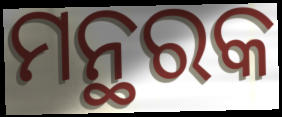
ମନ୍ଥରକ